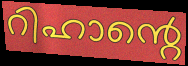
റിഹാന്റെ